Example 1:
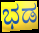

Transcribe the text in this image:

ಭಡ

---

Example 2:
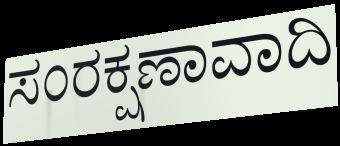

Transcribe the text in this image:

ಸಂರಕ್ಷಣಾವಾದಿ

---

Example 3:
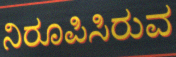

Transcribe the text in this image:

ನಿರೂಪಿಸಿರುವ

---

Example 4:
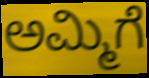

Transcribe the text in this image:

ಅಮ್ಮಿಗೆ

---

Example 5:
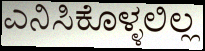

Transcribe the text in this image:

ಎನಿಸಿಕೊಳ್ಳಲಿಲ್ಲ